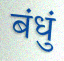
बंधुं